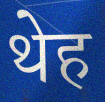
थेह